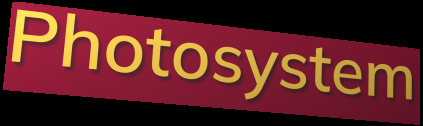
Photosystem